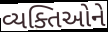
વ્યક્તિઓને